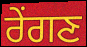
ਰੇਂਗਣ